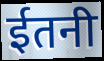
ईतनी